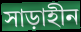
সাড়াহীন